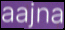
aajna